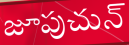
జూపుచున్